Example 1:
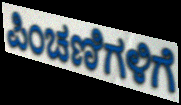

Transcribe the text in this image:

ಪಿಂಚಣಿಗಳಿಗೆ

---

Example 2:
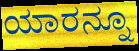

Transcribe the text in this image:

ಯಾರನ್ನೂ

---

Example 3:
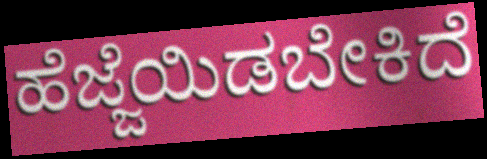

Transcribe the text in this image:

ಹೆಜ್ಜೆಯಿಡಬೇಕಿದೆ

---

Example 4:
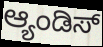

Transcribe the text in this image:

ಆ್ಯಂಡಿಸ್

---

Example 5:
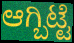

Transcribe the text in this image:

ಆಗ್ಬಿಟ್ಟೆ